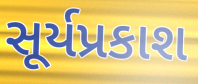
સૂર્યપ્રકાશ